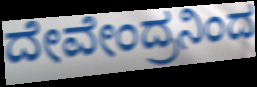
ದೇವೇಂದ್ರನಿಂದ